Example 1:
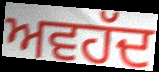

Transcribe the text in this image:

ਅਵਹੱਦ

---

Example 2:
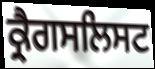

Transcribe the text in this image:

ਕ੍ਰੈਗਸਲਿਸਟ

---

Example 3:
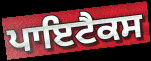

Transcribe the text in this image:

ਪਾਇਟੈਕਸ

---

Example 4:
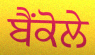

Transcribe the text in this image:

ਬੈਂਕੋਲੇ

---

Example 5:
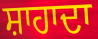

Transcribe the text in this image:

ਸ਼ਾਹਾਦਾ